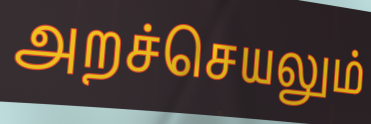
அறச்செயலும்